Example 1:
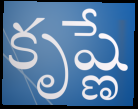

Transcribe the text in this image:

కృష్ణే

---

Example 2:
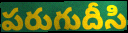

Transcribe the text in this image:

పరుగుదీసి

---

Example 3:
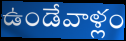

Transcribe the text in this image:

ఉండేవాళ్లం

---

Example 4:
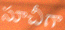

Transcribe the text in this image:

సూచీగా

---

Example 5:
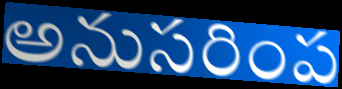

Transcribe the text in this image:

అనుసరింప